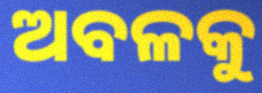
ଅବଳକୁ